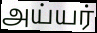
அய்யர்